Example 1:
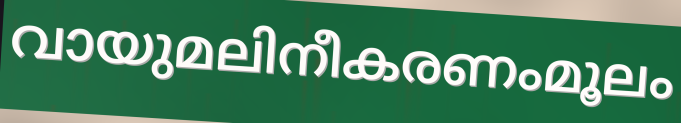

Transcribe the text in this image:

വായുമലിനീകരണംമൂലം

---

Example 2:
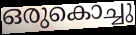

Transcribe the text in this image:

ഒരുകൊച്ചു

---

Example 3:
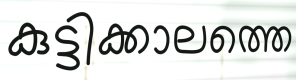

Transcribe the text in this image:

കുട്ടിക്കാലത്തെ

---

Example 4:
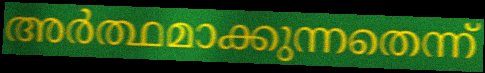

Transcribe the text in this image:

അർത്ഥമാക്കുന്നതെന്ന്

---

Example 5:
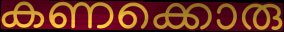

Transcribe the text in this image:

കണക്കൊരു